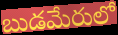
బుడమేరులో